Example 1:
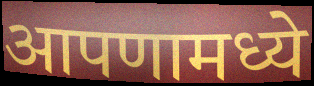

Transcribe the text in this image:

आपणामध्ये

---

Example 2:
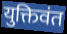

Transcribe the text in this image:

युक्तिवंत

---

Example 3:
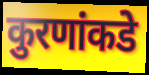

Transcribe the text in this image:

कुरणांकडे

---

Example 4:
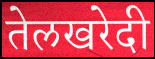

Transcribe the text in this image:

तेलखरेदी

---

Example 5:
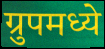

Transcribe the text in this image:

ग्रुपमध्ये